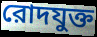
রোদযুক্ত